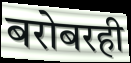
बरोबरही